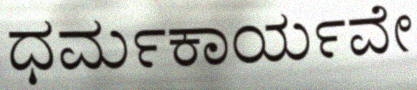
ಧರ್ಮಕಾರ್ಯವೇ